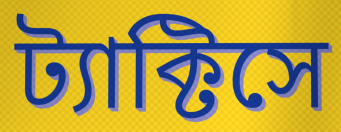
ট্যাক্টিসে